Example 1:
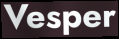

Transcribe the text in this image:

Vesper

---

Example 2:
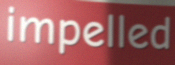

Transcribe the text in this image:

impelled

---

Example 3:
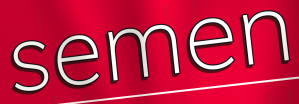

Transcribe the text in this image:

semen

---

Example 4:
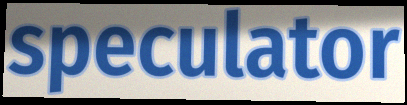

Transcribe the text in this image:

speculator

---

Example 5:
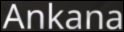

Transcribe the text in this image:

Ankana